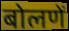
बोलणें